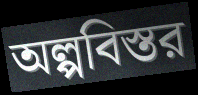
অল্পবিস্তর